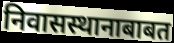
निवासस्थानाबाबत